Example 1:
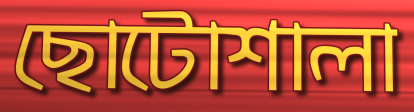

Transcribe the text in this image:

ছোটোশালা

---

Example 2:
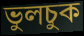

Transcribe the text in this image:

ভুলচুক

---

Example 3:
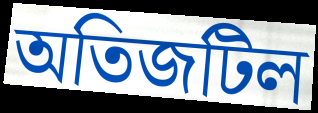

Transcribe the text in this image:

অতিজটিল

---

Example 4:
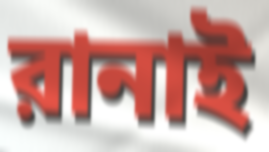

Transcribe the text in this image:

রানাই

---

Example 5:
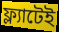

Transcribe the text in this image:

ফ্ল্যাটেই